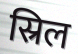
स्रिल